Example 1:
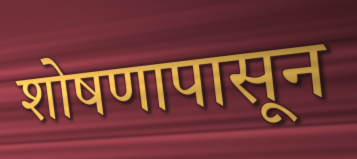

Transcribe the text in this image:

शोषणापासून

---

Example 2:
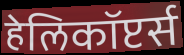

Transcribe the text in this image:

हेलिकॉप्टर्स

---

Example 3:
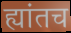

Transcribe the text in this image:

ह्यांतच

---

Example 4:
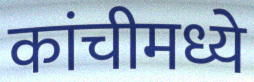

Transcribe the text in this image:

कांचीमध्ये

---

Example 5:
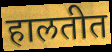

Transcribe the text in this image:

हालतीत